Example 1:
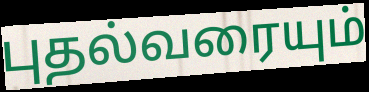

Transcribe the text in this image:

புதல்வரையும்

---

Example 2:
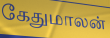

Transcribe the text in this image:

கேதுமாலன்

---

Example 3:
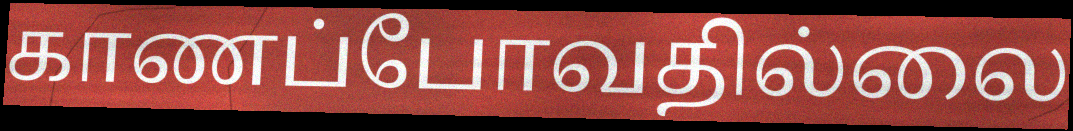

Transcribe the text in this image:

காணப்போவதில்லை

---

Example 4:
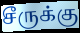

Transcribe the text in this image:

சீருக்கு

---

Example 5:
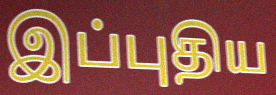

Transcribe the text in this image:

இப்புதிய